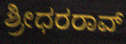
ಶ್ರೀಧರರಾವ್